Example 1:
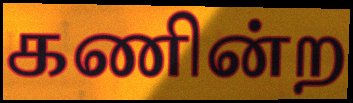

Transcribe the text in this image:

கணின்ற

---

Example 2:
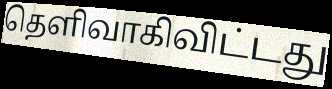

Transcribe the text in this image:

தெளிவாகிவிட்டது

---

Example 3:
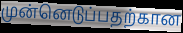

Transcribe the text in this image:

முன்னெடுப்பதற்கான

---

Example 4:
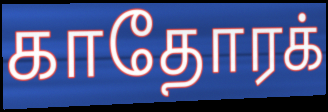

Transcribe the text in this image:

காதோரக்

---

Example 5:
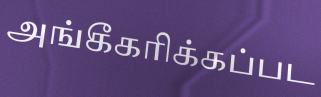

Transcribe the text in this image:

அங்கீகரிக்கப்பட